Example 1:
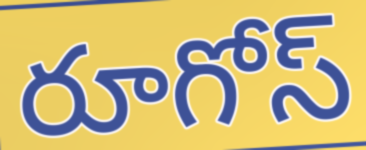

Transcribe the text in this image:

రూగోస్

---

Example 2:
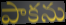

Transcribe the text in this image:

పాకను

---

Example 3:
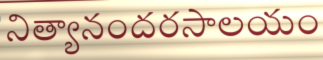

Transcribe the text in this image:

నిత్యానందరసాలయం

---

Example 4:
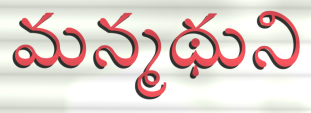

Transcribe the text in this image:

మన్మథుని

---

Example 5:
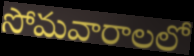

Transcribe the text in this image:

సోమవారాలలో